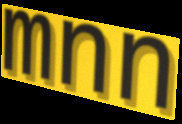
mnn